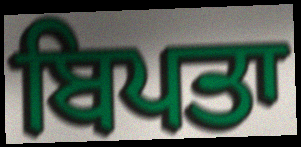
ਬਿਪਤਾ